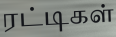
ரட்டிகள்